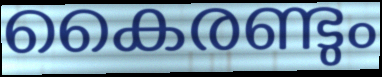
കൈരണ്ടും